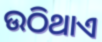
ଉଠିଥାଏ